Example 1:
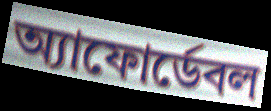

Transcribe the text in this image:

অ্যাফোর্ডেবল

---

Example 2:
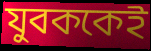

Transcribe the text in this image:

যুবককেই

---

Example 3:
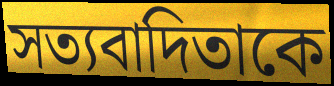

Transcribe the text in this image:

সত্যবাদিতাকে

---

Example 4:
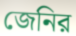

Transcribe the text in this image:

জেনির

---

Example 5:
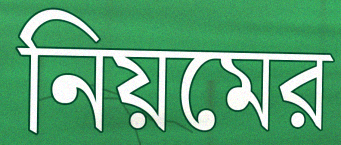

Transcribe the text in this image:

নিয়মের